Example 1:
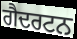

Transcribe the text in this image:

ਗੈਦਰਟਨ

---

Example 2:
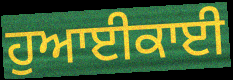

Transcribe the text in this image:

ਹੁਆਈਕਾਈ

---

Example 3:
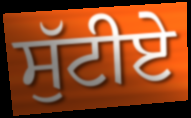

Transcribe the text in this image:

ਸੁੱਟੀਏ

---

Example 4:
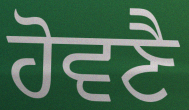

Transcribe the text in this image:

ਹੋਵਣੈ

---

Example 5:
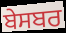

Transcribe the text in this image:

ਬੇਸਬਰ